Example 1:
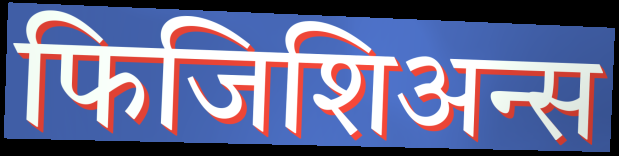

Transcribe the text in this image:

फिजिशिअन्स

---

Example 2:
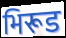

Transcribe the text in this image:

भिरूड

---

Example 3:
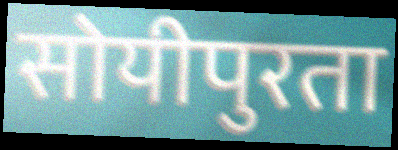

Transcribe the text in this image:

सोयीपुरता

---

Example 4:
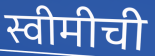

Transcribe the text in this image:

स्वीमीची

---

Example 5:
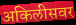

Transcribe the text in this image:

अकिलीसवर